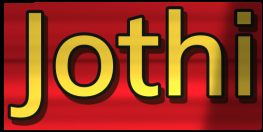
Jothi